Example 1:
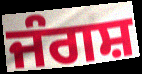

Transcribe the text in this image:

ਜੰਗਸ਼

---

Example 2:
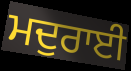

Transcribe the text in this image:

ਮਦੁਰਾਈ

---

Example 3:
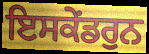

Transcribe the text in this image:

ਇਸਕੇਂਡਰੁਨ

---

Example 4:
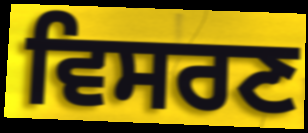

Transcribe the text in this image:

ਵਿਸਰਣ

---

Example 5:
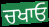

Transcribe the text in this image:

ਚਖਾਓ